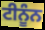
ਟੀਨੂੰਨ